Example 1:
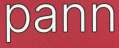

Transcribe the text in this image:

pann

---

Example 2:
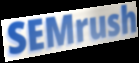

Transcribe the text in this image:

SEMrush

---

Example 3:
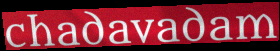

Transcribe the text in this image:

chadavadam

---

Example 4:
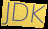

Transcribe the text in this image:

JDK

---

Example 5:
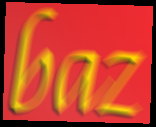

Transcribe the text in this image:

baz